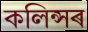
কলিন্সৰ